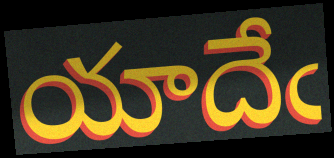
యాదేఁ